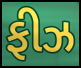
ફીઝ